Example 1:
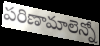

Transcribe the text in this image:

పరిణామాలెన్నో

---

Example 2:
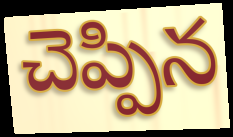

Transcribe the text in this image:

చెప్పిన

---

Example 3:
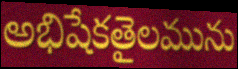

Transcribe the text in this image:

అభిషేకతైలమును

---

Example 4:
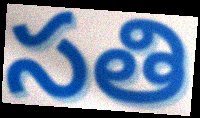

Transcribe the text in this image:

సతి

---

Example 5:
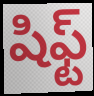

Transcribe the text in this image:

షిఫ్ట్